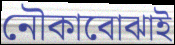
নৌকাবোঝাই